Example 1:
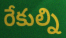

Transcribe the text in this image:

రేకుల్ని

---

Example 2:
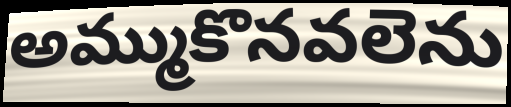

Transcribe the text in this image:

అమ్ముకొనవలెను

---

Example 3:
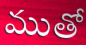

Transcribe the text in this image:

ముతో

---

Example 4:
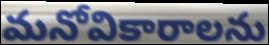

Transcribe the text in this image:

మనోవికారాలను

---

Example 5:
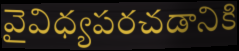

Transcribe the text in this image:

వైవిధ్యపరచడానికి